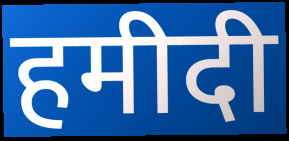
हमीदी